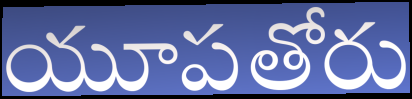
యూపతోరు